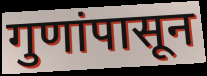
गुणांपासून